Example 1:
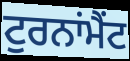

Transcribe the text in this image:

ਟੁਰਨਾਂਮੈਂਟ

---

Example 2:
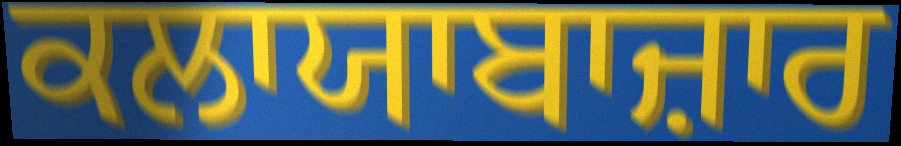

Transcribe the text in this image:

ਕਲਾਯਾਬਾਜ਼ਾਰ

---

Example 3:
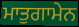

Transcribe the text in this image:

ਮਾਤੁਗਾਮੇਨ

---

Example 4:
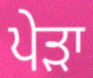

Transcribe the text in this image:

ਪੇੜਾ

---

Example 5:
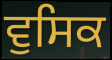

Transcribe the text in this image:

ਵੁਸਿਕ